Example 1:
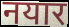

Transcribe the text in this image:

नयार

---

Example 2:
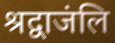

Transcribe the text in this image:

श्रद्वाजंलि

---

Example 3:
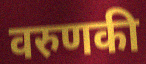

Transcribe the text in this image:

वरुणकी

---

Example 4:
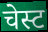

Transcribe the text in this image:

चेस्ट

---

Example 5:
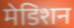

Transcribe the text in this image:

मेडिशन